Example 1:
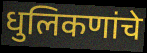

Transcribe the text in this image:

धुलिकणांचे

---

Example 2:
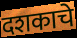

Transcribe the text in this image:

दशकाचे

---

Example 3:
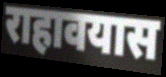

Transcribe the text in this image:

राहावयास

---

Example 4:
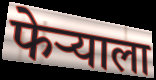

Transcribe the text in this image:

फेऱ्याला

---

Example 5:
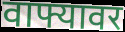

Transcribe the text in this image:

वाफ्यावर